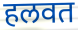
हलवत